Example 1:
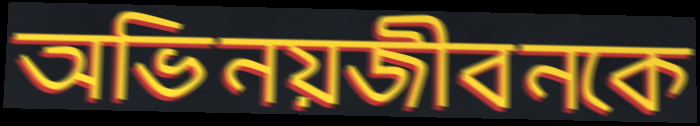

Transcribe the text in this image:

অভিনয়জীবনকে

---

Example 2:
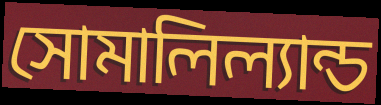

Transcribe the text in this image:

সোমালিল্যান্ড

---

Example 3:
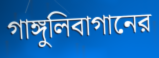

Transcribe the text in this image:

গাঙ্গুলিবাগানের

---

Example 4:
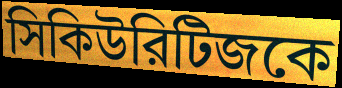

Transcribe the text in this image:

সিকিউরিটিজকে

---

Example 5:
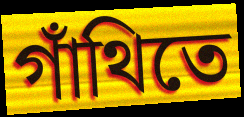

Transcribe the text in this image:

গাঁথিতে